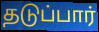
தடுப்பார்